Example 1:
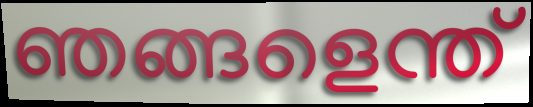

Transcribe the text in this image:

ഞങ്ങളെന്ത്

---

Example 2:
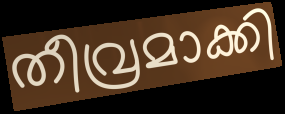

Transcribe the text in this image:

തീവ്രമാക്കി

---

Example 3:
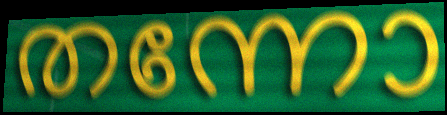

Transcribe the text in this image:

തന്നോ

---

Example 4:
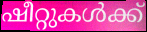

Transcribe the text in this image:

ഷീറ്റുകൾക്ക്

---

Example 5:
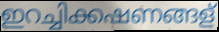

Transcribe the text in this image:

ഇറച്ചിക്കഷണങ്ങള്